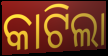
କାଟିଲା